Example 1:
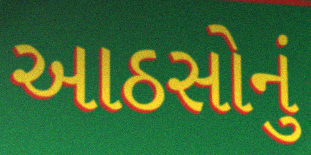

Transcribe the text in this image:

આઠસોનું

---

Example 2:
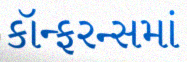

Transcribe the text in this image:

કૉન્ફરન્સમાં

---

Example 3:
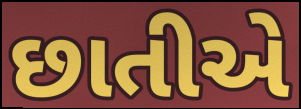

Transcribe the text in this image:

છાતીએ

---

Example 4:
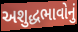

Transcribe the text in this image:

અશુદ્ધભાવોનું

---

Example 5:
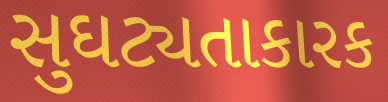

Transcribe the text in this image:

સુઘટ્યતાકારક